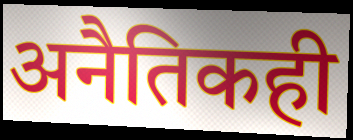
अनैतिकही